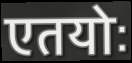
एतयोः